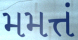
મમત્તં